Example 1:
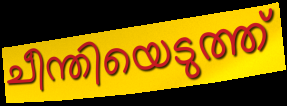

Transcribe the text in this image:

ചീന്തിയെടുത്ത്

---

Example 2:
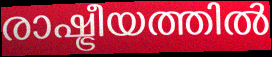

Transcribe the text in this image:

രാഷ്ട്രീയത്തിൽ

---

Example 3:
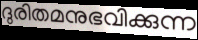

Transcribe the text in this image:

ദുരിതമനുഭവിക്കുന്ന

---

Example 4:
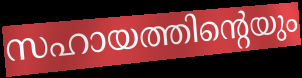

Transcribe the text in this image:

സഹായത്തിന്റെയും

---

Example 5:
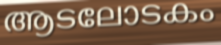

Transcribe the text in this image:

ആടലോടകം